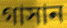
গাসান